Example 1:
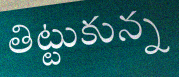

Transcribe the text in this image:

తిట్టుకున్న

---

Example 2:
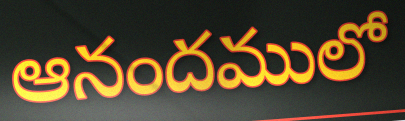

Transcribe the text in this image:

ఆనందములో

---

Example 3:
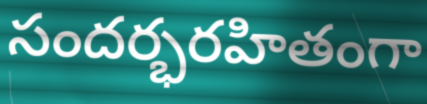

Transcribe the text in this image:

సందర్భరహితంగా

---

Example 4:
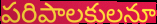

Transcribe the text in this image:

పరిపాలకులనూ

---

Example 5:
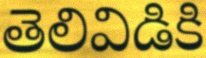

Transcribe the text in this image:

తెలివిడికి